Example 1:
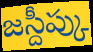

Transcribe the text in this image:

జస్దీప్కు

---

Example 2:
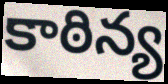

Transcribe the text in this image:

కాఠిన్య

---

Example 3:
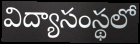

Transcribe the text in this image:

విద్యాసంస్థలో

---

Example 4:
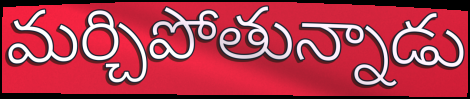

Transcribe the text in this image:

మర్చిపోతున్నాడు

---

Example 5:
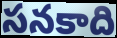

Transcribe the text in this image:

సనకాది